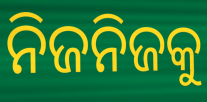
ନିଜନିଜକୁ